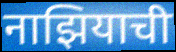
नाझियाची